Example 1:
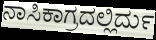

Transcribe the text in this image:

ನಾಸಿಕಾಗ್ರದಲ್ಲಿರ್ದು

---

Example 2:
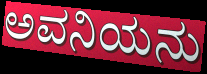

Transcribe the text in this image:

ಅವನಿಯನು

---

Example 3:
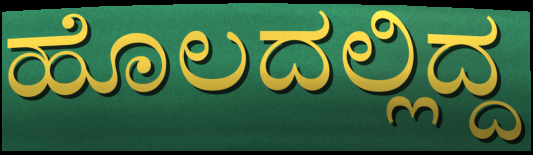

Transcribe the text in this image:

ಹೊಲದಲ್ಲಿದ್ದ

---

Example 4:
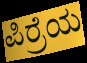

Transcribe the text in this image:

ಪಿರ್ರೆಯ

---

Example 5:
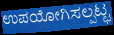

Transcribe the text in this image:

ಉಪಯೋಗಿಸಲ್ಪಟ್ಟ